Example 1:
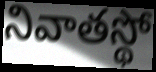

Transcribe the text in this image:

నివాతస్థో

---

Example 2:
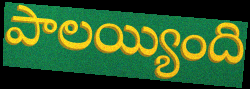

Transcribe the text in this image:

పాలయ్యింది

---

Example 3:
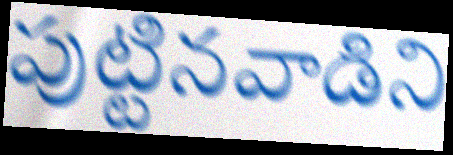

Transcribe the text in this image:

పుట్టినవాడిని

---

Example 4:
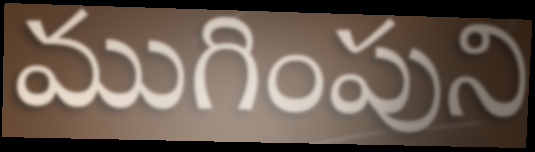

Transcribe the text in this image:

ముగింపుని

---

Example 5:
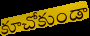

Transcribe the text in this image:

కూచోకుండా